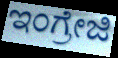
ಇಂಗ್ರೇಜಿ